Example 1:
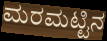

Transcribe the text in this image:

ಮರಮಟ್ಟಿನ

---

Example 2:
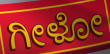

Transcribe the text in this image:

ಗೀಳೋ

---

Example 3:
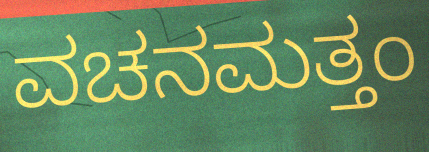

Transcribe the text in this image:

ವಚನಮತ್ತಂ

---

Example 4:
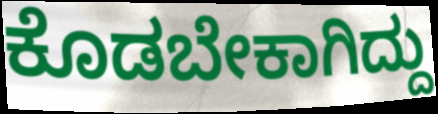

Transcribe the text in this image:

ಕೊಡಬೇಕಾಗಿದ್ದು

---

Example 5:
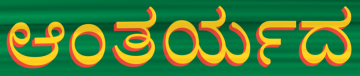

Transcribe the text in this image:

ಆಂತರ್ಯದ